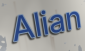
Alian